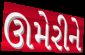
ઊમેરીને